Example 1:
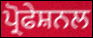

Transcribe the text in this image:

ਪ੍ਰੋਫੇਸ਼ਨਲ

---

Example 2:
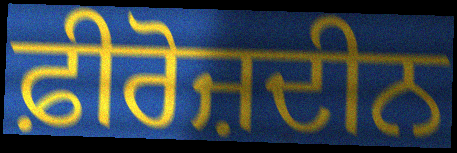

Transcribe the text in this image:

ਫ਼ੀਰੋਜ਼ਦੀਨ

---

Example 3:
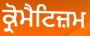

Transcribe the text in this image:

ਕ੍ਰੋਮੈਟਿਜ਼ਮ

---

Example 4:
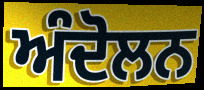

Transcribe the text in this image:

ਅੰਦੋਲਨ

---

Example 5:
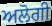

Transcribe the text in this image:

ਅਲੋਗੀ